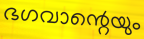
ഭഗവാന്റെയും